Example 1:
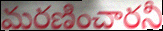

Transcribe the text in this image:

మరణించారనీ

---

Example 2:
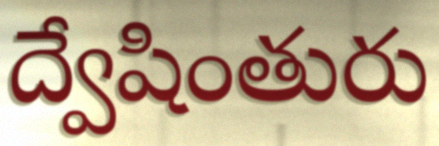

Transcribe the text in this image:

ద్వేషింతురు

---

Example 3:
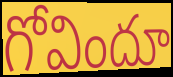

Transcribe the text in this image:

గోవిందూ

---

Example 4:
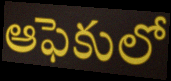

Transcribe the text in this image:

ఆఫెకులో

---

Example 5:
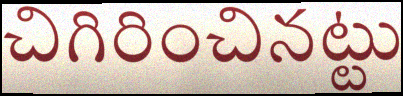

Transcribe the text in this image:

చిగిరించినట్టు